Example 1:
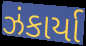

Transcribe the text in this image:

ઝંકાર્યા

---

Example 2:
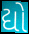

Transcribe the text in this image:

દ્યો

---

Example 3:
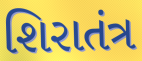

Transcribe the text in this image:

શિરાતંત્ર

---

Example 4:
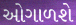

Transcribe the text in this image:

ઓગાળશે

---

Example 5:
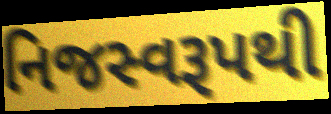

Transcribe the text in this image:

નિજસ્વરૂપથી